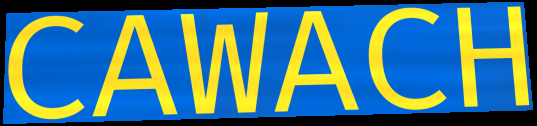
CAWACH